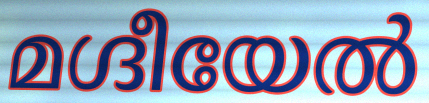
മഗ്ദീയേൽ